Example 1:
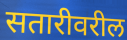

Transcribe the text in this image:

सतारीवरील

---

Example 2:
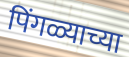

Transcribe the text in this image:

पिंगळ्याच्या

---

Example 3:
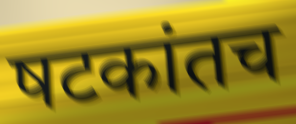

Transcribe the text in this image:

षटकांतच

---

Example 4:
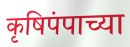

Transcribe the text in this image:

कृषिपंपाच्या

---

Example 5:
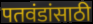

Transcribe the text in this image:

पतवंडांसाठी